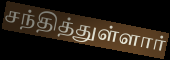
சந்தித்துள்ளார்